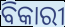
ବିକାରୀ